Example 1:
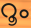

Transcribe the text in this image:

റൂം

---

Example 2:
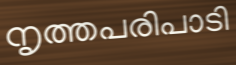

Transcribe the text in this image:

നൃത്തപരിപാടി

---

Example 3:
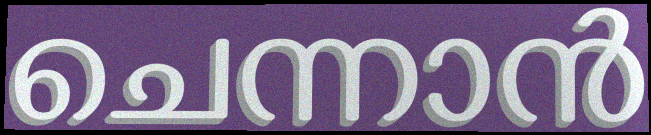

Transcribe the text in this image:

ചെന്നാൻ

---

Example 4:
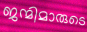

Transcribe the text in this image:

ജന്മിമാരുടെ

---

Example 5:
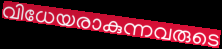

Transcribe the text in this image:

വിധേയരാകുന്നവരുടെ